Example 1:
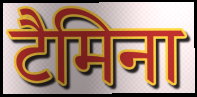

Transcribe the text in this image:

टैमिना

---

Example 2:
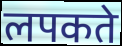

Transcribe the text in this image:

लपकते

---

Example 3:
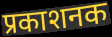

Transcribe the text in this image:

प्रकाशनक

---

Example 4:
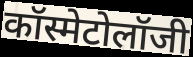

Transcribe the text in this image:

कॉस्मेटोलॉजी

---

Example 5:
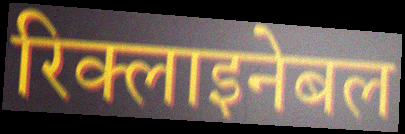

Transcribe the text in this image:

रिक्लाइनेबल